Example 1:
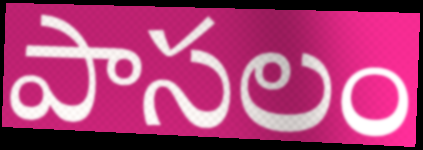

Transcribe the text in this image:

పాసలం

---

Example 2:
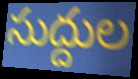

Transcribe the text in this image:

సుద్దుల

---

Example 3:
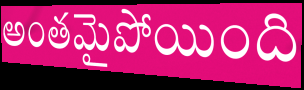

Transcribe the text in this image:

అంతమైపోయింది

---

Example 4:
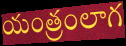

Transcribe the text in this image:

యంత్రంలాగ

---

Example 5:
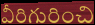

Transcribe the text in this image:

వీరిగురించి